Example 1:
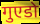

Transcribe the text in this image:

गुएडो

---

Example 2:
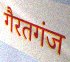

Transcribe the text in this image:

गैरतगंज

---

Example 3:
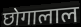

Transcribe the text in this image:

छोगालाल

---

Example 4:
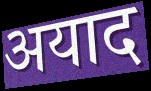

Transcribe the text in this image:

अयाद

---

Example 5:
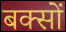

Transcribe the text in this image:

बक्सों